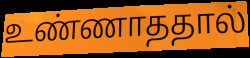
உண்ணாததால்